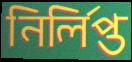
নিৰ্লিপ্ত